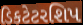
ડિકટેટરશિપ